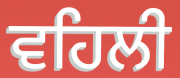
ਵਹਿਲੀ